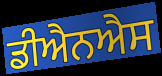
ਡੀਐਨਐਸ